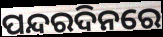
ପନ୍ଦରଦିନରେ